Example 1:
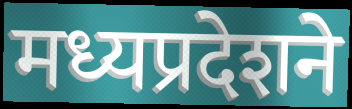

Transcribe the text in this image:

मध्यप्रदेशने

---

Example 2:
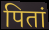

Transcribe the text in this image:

पितां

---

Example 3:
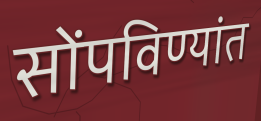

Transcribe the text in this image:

सोंपविण्यांत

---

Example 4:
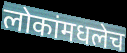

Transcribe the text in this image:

लोकांमधलेच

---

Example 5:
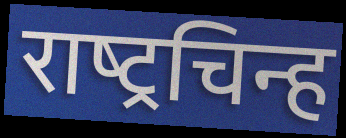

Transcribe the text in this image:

राष्ट्रचिन्ह